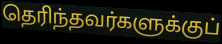
தெரிந்தவர்களுக்குப்